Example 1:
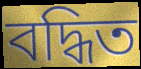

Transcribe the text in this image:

বদ্ধিত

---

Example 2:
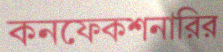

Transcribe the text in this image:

কনফেকশনারির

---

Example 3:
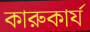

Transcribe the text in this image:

কারুকার্য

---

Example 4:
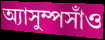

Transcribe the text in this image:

অ্যাসুম্পসাঁও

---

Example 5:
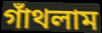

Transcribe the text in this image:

গাঁথলাম